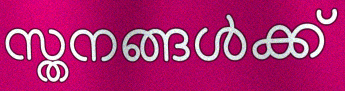
സ്തനങ്ങൾക്ക്